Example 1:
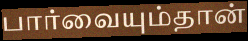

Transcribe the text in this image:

பார்வையும்தான்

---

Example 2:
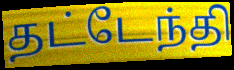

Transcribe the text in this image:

தட்டேந்தி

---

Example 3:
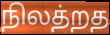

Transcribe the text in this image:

நிலத்றத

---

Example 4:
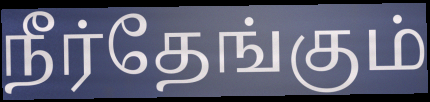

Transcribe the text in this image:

நீர்தேங்கும்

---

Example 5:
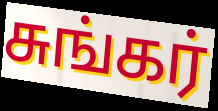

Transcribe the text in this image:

சுங்கர்